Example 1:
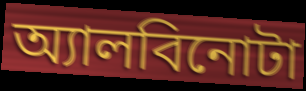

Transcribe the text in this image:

অ্যালবিনোটা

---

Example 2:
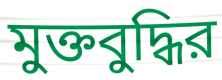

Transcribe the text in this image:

মুক্তবুদ্ধির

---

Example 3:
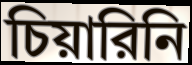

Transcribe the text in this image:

চিয়ারিনি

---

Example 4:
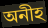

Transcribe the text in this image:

অনীহ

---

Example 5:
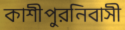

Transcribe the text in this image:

কাশীপুরনিবাসী